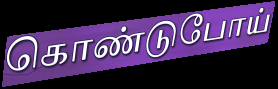
கொண்டுபோய்